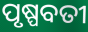
ପୃଷ୍ପବତୀ